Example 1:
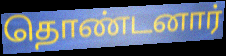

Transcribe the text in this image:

தொண்டனார்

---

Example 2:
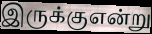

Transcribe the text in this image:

இருக்குஎன்று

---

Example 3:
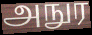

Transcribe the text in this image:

அநுர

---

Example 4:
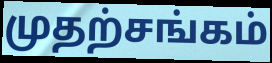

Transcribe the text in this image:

முதற்சங்கம்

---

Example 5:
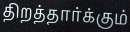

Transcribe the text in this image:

திறத்தார்க்கும்